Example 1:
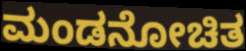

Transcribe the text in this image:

ಮಂಡನೋಚಿತ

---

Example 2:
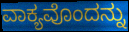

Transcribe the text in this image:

ವಾಕ್ಯವೊಂದನ್ನು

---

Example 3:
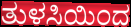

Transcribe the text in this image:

ತುಳಸಿಯಿಂದ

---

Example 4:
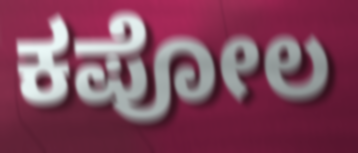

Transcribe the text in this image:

ಕಪೋಲ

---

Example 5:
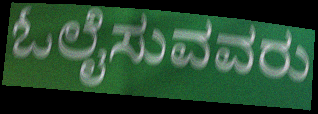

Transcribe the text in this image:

ಓಲೈಸುವವರು